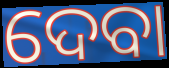
ଦେବା